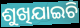
ଶୁଖିଯାଇଚି